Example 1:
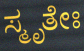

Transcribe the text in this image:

ಸ್ಮೃತೇಃ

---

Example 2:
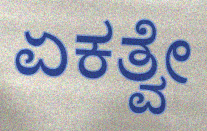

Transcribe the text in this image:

ಏಕತ್ವೇ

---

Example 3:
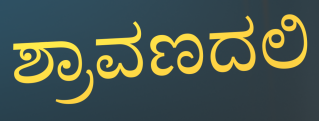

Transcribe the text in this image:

ಶ್ರಾವಣದಲಿ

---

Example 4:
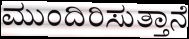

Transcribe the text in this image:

ಮುಂದಿರಿಸುತ್ತಾನೆ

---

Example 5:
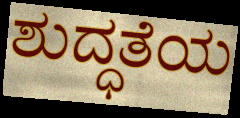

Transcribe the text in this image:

ಶುದ್ಧತೆಯ